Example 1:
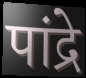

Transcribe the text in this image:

पांद्रे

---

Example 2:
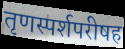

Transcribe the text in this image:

तृणस्पर्शपरीषह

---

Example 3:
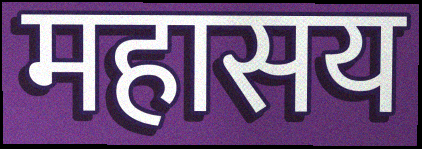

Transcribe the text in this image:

महासय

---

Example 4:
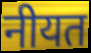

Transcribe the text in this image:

नीयत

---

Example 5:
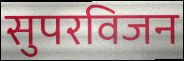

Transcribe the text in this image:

सुपरविजन